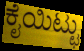
ಕೈಯಿಟ್ಟು